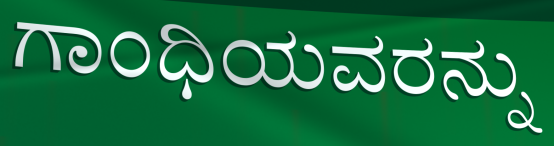
ಗಾಂಧಿಯವರನ್ನು